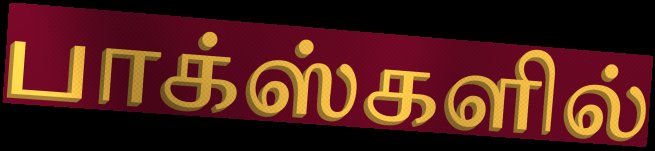
பாக்ஸ்களில்